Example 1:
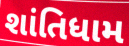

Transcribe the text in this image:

શાંતિધામ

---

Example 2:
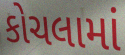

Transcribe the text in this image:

કોચલામાં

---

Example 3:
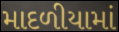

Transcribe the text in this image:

માદળીયામાં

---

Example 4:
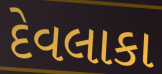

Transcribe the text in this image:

દેવલાકા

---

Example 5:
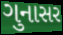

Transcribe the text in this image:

ગુનાસર